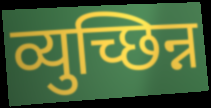
व्युच्छिन्न